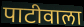
पाटीवाला